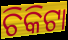
ଚିକିଟା